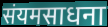
संयमसाधना